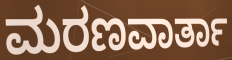
ಮರಣವಾರ್ತಾ